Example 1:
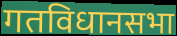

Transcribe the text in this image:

गतविधानसभा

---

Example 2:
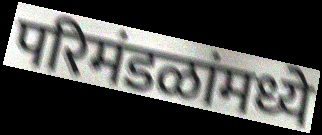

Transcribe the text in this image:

परिमंडळांमध्ये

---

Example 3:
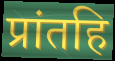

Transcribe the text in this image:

प्रांतहि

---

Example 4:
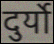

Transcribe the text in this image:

दुर्यो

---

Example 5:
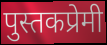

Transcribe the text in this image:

पुस्तकप्रेमी